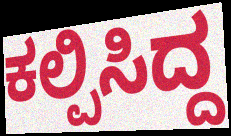
ಕಲ್ಪಿಸಿದ್ದ